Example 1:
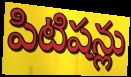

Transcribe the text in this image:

పిటిషన్లు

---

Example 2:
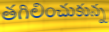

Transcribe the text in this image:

తగిలించుకున్న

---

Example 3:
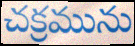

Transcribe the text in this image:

చక్రమును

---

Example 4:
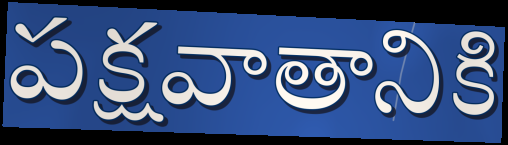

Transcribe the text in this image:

పక్షవాతానికి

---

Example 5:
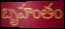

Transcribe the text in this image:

బృహంతం